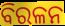
ବିରଳନ